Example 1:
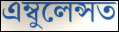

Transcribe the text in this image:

এম্বুলেন্সত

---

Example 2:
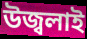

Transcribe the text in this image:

উজ্বলাই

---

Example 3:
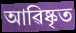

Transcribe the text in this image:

আৱিষ্কৃত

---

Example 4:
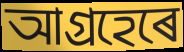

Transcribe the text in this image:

আগ্ৰহেৰে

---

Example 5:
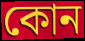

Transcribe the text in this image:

কোন